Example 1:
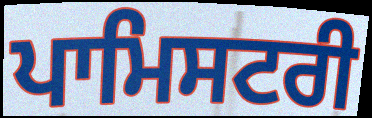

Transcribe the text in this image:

ਪਾਮਿਸਟਰੀ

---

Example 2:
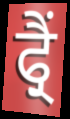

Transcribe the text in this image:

ਫ੍ਰੈਂ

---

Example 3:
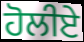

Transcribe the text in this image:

ਹੋਲੀਏ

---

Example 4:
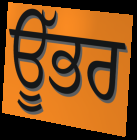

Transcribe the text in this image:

ਊੱਭਰ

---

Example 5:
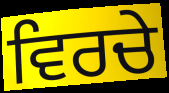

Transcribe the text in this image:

ਵਿਰਚੇ